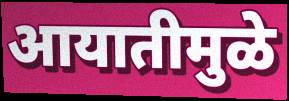
आयातीमुळे